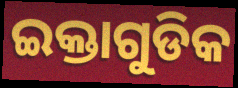
ଇକ୍ତାଗୁଡିକ